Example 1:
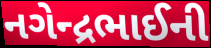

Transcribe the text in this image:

નગેન્દ્રભાઈની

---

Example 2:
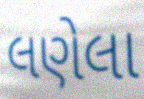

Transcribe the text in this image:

લણેલા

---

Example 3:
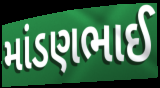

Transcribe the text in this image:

માંડણભાઈ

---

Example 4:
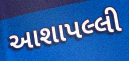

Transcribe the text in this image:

આશાપલ્લી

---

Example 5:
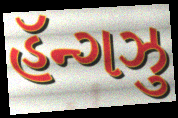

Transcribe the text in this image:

હૅન્ગઝુ